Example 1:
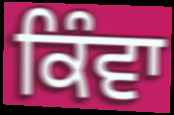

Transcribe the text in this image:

ਕਿੰਵਾ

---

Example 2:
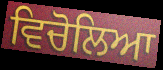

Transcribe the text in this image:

ਵਿਚੋਲਿਆ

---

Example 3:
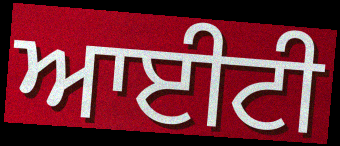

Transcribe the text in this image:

ਆਈਟੀ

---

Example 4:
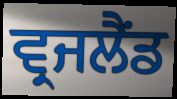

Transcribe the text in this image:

ਵ੍ਰਜਲੈਂਡ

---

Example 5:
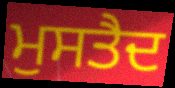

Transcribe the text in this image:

ਮੁਸਤੈਦ